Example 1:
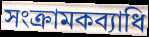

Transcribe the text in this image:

সংক্রামকব্যাধি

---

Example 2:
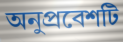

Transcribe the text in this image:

অনুপ্রবেশটি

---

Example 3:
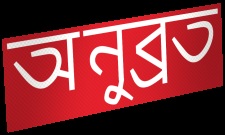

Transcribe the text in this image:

অনুব্রত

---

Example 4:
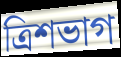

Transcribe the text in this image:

ত্রিশভাগ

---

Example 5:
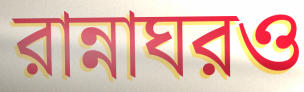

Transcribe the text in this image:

রান্নাঘরও